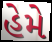
હેમે